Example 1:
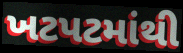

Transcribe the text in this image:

ખટપટમાંથી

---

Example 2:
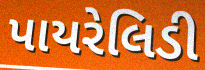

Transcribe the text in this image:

પાયરેલિડી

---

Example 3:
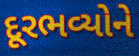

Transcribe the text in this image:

દૂરભવ્યોને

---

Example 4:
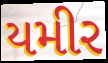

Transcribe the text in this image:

યમીર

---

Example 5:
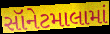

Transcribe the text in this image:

સૉનેટમાલામાં